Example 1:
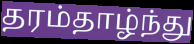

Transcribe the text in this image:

தரம்தாழ்ந்து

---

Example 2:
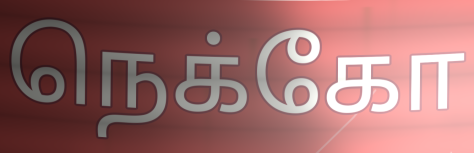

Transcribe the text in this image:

நெக்கோ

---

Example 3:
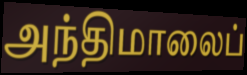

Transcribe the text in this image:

அந்திமாலைப்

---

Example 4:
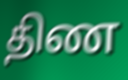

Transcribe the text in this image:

திண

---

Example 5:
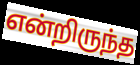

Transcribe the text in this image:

என்றிருந்த